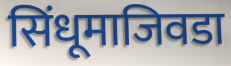
सिंधूमाजिवडा